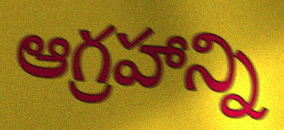
ఆగ్రహాన్ని